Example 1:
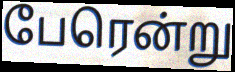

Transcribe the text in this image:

பேரென்று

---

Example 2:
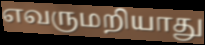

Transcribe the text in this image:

எவருமறியாது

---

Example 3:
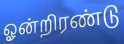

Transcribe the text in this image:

ஓன்றிரண்டு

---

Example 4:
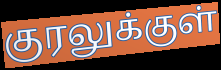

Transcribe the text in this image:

குரலுக்குள்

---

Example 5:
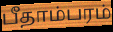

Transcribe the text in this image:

பீதாம்பரம்